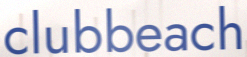
clubbeach